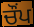
ਚੌਂਪ